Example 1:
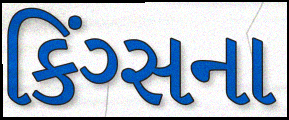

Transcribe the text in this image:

કિંગ્સના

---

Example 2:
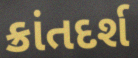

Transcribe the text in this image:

ક્રાંતદર્શ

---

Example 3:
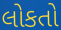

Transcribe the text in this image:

લોકતો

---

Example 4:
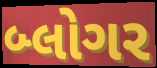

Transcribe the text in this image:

બ્લોગર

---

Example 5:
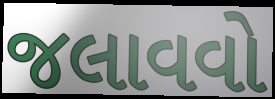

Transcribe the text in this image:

જલાવવો